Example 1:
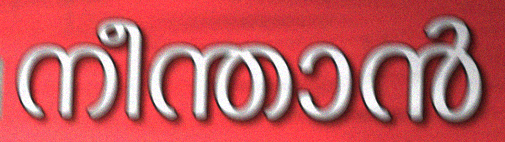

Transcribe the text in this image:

നീന്താൻ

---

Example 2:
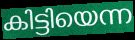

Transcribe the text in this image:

കിട്ടിയെന്ന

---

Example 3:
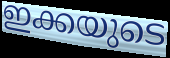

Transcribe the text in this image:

ഇക്കയുടെ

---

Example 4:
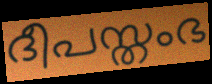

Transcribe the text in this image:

ദീപസ്തംഭ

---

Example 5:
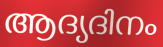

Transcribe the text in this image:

ആദ്യദിനം